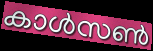
കാൾസൺ